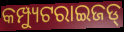
କମ୍ପ୍ୟୁଟରାଇଜଡ୍